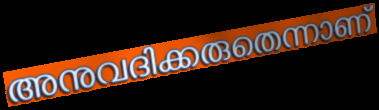
അനുവദിക്കരുതെന്നാണ്